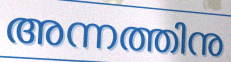
അന്നത്തിനു